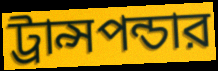
ট্রান্সপন্ডার